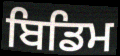
ਬਿਡਿਮ